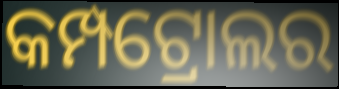
କମ୍ପଟ୍ରୋଲର